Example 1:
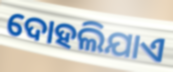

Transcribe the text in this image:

ଦୋହଲିଯାଏ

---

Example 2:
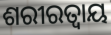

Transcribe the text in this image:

ଶରୀରତ୍ୱାୟ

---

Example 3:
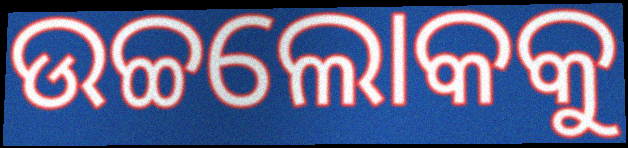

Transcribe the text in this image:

ଉଚ୍ଚଲୋକକୁ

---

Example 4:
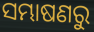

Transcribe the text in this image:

ସମ୍ଭାଷଣରୁ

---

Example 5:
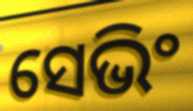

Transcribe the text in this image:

ସେଭିଂ